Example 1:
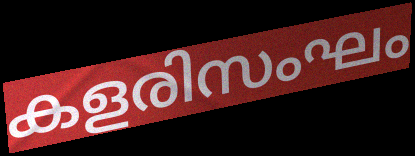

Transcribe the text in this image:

കളരിസംഘം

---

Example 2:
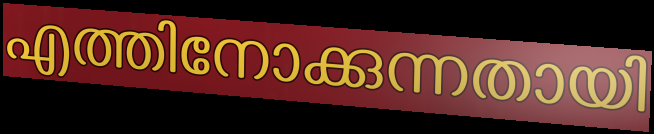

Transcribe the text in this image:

എത്തിനോക്കുന്നതായി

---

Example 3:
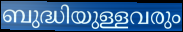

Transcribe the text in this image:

ബുദ്ധിയുള്ളവരും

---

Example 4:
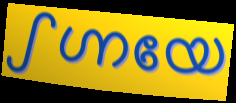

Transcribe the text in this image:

ഽഗ്നയേ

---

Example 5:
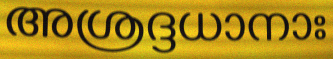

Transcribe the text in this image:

അശ്രദ്ദധാനാഃ